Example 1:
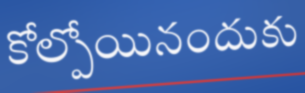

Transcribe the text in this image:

కోల్పోయినందుకు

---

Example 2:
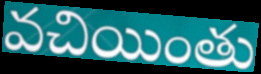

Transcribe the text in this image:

వచియింతు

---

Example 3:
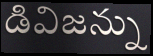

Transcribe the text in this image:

డివిజన్ను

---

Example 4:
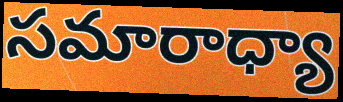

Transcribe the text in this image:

సమారాధ్యా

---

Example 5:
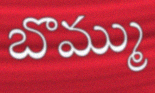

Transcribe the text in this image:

బొమ్ము